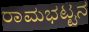
ರಾಮಭಟ್ಟನ